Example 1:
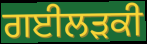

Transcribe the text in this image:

ਗਈਲੜਕੀ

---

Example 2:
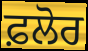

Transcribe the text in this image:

ਫ਼ਲੋਰ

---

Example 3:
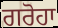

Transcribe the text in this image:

ਗਰੋਹਾ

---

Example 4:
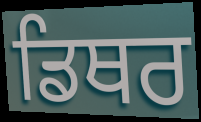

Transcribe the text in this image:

ਡਿਥਰ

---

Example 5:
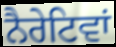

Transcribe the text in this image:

ਨੈਰੇਟਿਵਾਂ